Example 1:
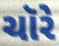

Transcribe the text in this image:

ચૉરે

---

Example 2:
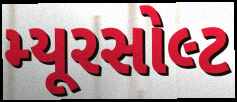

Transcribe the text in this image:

મ્યૂરસોલ્ટ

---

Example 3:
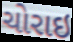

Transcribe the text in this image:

ચોરાઇ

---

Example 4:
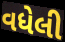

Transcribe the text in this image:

વધેલી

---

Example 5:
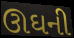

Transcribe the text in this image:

ઊઘની